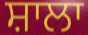
ਸ਼ਾਲਾ